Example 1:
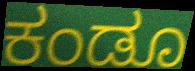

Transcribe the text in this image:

ಕಂಡೂ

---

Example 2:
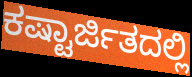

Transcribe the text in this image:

ಕಷ್ಟಾರ್ಜಿತದಲ್ಲಿ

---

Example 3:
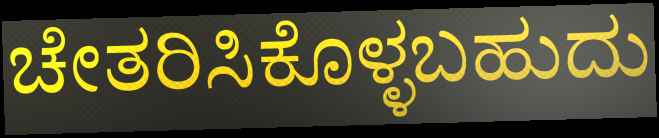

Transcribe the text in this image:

ಚೇತರಿಸಿಕೊಳ್ಳಬಹುದು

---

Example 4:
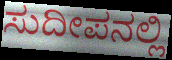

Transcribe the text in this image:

ಸುದೀಪನಲ್ಲಿ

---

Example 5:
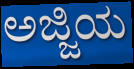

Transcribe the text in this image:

ಅಜ್ಜಿಯ